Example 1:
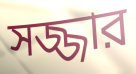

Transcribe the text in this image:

সজ্জার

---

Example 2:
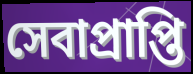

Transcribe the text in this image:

সেবাপ্রাপ্তি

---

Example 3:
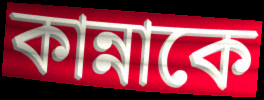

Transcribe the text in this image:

কান্নাকে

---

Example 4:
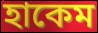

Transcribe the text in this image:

হাকেম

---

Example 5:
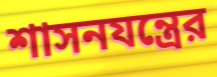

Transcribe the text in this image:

শাসনযন্ত্রের